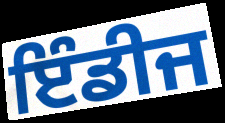
ਇੰਡੀਜ